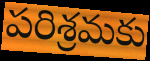
పరిశ్రమకు